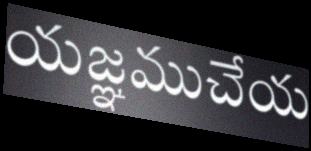
యజ్ఞముచేయ